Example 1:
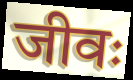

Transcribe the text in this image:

जीवः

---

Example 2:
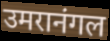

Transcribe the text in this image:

उमरानंगल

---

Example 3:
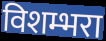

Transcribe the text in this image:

विशम्भरा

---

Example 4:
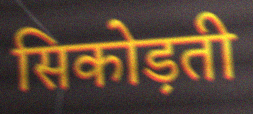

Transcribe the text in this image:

सिकोड़ती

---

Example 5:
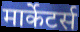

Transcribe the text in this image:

मार्केटर्स